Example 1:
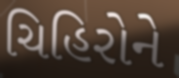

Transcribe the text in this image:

ચિહિરોને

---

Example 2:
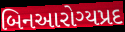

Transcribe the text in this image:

બિનઆરોગ્યપ્રદ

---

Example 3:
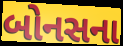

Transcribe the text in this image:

બોનસના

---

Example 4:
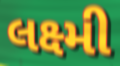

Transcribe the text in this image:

લક્ષ્મી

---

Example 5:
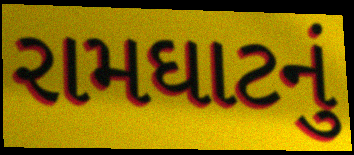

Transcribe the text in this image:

રામઘાટનું